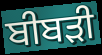
ਬੀਬੜੀ